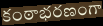
కంఠాభరణంగా